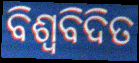
ବିଶ୍ବବିଦିତ